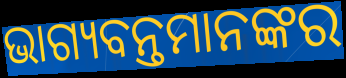
ଭାଗ୍ୟବନ୍ତମାନଙ୍କର